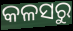
କଳସରୁ